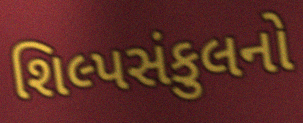
શિલ્પસંકુલનો